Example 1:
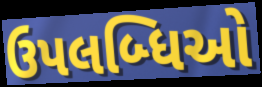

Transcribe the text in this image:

ઉપલબ્ધિઓ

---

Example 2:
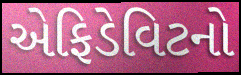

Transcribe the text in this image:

એફિડેવિટનો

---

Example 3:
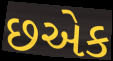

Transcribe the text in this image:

છએક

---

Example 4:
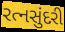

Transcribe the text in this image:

રત્નસુંદરી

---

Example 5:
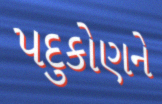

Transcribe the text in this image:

પદુકોણને